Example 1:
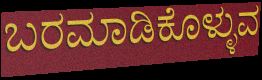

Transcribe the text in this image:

ಬರಮಾಡಿಕೊಳ್ಳುವ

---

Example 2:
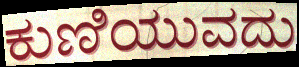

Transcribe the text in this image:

ಕುಣಿಯುವದು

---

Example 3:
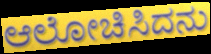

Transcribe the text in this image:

ಆಲೋಚಿಸಿದನು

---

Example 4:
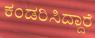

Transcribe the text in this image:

ಕಂಡರಿಸಿದ್ದಾರೆ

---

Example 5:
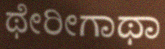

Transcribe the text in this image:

ಥೇರೀಗಾಥಾ